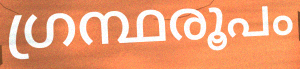
ഗ്രന്ഥരൂപം